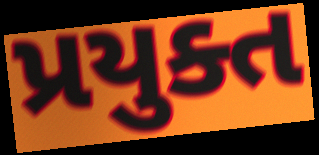
પ્રયુક્ત